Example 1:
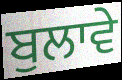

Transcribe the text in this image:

ਬੁਲਾਵੇ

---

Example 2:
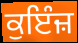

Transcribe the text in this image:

ਕੁਇੰਜ਼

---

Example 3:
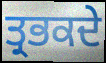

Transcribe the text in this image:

ਤ੍ਰਭਕਦੇ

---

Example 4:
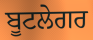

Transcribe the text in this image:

ਬੂਟਲੇਗਰ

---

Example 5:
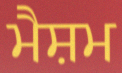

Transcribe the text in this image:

ਮੈਸ਼ਮ